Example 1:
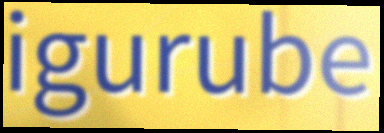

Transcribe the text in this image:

igurube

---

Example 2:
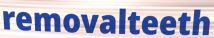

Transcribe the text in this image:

removalteeth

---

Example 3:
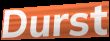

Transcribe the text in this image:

Durst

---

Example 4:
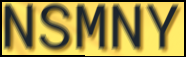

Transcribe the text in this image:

NSMNY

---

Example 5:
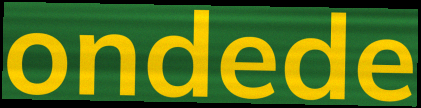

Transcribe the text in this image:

ondede